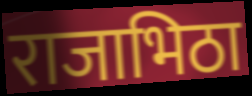
राजाभिठा